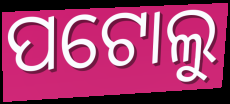
ପଟୋଲୁ